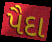
પૈદા